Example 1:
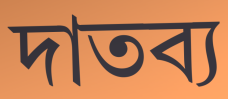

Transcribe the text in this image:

দাতব্য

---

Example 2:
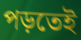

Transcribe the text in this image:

পড়তেই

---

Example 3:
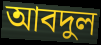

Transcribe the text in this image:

আবদুল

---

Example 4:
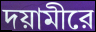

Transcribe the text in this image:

দয়ামীরে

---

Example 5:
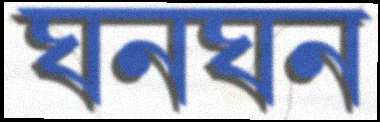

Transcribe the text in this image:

ঘনঘন